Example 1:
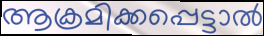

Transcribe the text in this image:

ആക്രമിക്കപ്പെട്ടാൽ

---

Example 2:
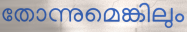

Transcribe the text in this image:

തോന്നുമെങ്കിലും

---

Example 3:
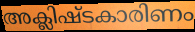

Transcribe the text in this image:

അക്ലിഷ്ടകാരിണം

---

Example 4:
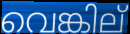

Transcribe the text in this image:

വെങ്കില്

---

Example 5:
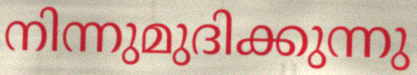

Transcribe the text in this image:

നിന്നുമുദിക്കുന്നു